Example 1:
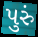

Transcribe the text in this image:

પુરું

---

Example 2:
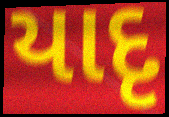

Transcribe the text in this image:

યાદૃ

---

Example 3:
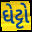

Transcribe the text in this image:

ઘેટ્ટો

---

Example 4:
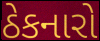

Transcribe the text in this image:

ઠેકનારો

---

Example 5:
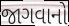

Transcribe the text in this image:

જાગવાનો